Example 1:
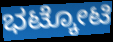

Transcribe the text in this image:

ಭಟ್ಕೋಟಿ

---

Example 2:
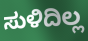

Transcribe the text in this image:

ಸುಳಿದಿಲ್ಲ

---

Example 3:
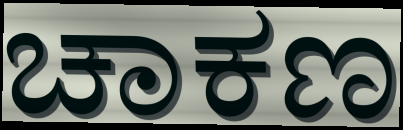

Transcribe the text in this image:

ಚಾಕಣ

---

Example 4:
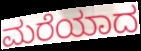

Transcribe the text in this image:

ಮರೆಯಾದ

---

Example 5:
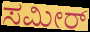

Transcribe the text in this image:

ಸಮೀರ್